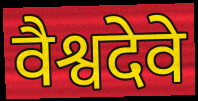
वैश्वदेवे